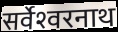
सर्वेश्वरनाथ